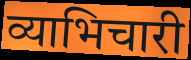
व्याभिचारी